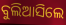
ବୁଲିଆସିଲେ